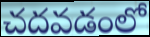
చదవడంలో